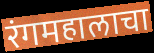
रंगमहालाचा